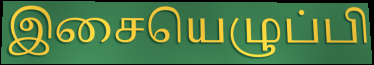
இசையெழுப்பி